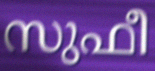
സുഫീ